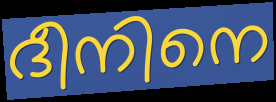
ദീനിനെ